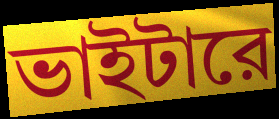
ভাইটারে